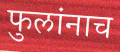
फुलांनाच